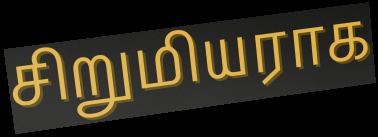
சிறுமியராக